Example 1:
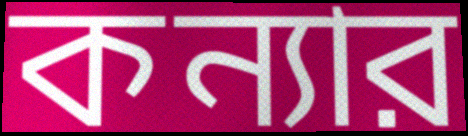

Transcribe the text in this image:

কন্যার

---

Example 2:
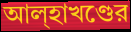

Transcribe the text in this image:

আল্হাখণ্ডের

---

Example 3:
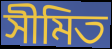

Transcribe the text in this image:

সীমিত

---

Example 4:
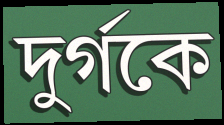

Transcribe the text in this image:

দুর্গকে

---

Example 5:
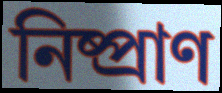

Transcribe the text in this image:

নিষ্প্রাণ